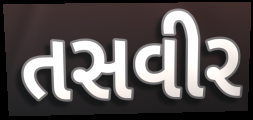
તસવીર